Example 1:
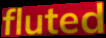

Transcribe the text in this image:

fluted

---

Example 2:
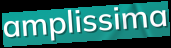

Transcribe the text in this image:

amplissima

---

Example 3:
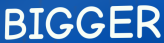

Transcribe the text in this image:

BIGGER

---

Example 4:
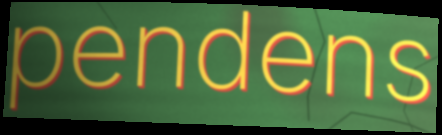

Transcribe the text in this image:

pendens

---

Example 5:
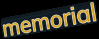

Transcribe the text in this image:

memorial